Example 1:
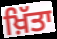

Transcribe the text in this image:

ਖ਼ਿੱਤਾ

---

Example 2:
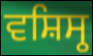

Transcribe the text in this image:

ਵਸ਼ਿਸ੍ਠ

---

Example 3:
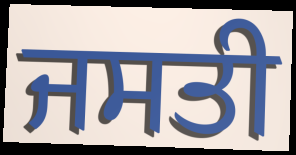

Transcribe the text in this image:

ਜਸਤੀ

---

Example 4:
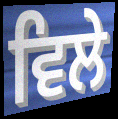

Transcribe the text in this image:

ਵਿਲੇ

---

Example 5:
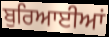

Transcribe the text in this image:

ਬੁਰਿਆਈਆਂ